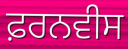
ਫ਼ਰਨਵੀਸ